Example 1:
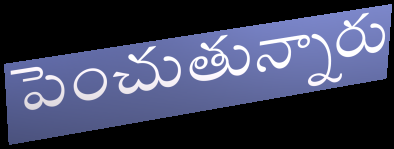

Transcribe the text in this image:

పెంచుతున్నారు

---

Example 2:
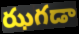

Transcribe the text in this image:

ఝగడా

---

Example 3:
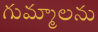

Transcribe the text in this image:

గుమ్మాలను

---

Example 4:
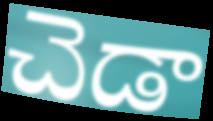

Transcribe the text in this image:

చెడా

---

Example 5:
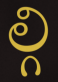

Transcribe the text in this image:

ల్గి